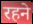
रहने